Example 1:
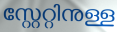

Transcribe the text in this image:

സ്റ്റേറ്റിനുള്ള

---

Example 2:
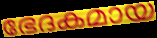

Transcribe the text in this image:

ഭേദകമായ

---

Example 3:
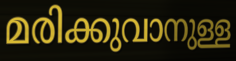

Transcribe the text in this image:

മരിക്കുവാനുള്ള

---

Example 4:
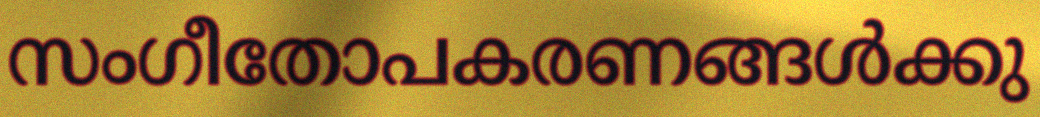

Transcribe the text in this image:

സംഗീതോപകരണങ്ങൾക്കു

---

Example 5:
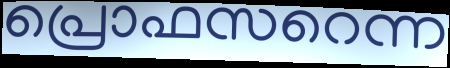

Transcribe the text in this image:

പ്രൊഫസറെന്ന